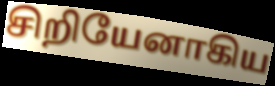
சிறியேனாகிய